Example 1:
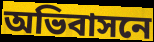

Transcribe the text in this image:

অভিবাসনে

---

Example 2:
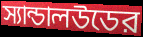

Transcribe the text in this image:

স্যান্ডালউডের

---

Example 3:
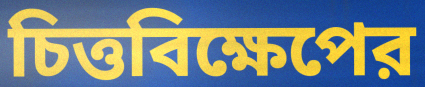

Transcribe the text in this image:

চিত্তবিক্ষেপের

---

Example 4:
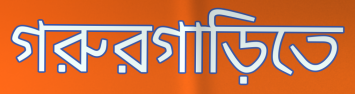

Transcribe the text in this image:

গরুরগাড়িতে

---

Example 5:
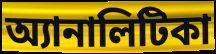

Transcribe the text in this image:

অ্যানালিটিকা